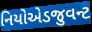
નિયોએડજુવન્ટ